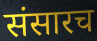
संसारच